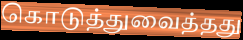
கொடுத்துவைத்தது